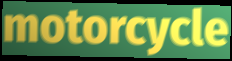
motorcycle